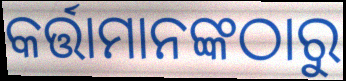
କର୍ତ୍ତାମାନଙ୍କଠାରୁ